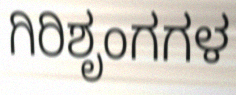
ಗಿರಿಶೃಂಗಗಳ